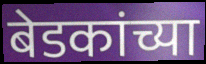
बेडकांच्या